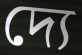
দ্যে